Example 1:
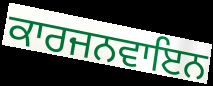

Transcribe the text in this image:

ਕਾਰਜਨਵਾਇਨ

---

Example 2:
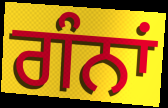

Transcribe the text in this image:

ਗੰਨਾਂ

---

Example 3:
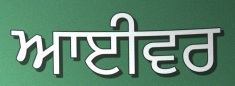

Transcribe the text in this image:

ਆਈਵਰ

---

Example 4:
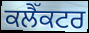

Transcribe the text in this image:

ਕਲੈੱਕਟਰ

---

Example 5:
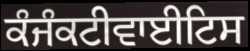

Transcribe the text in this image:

ਕੰਜੰਕਟੀਵਾਈਟਿਸ